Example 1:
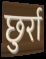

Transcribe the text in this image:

छुर्रा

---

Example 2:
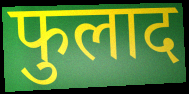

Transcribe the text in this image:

फुलाद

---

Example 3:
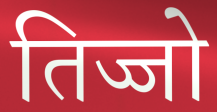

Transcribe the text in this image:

तिज्जो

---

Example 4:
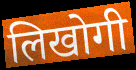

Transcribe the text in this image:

लिखोगी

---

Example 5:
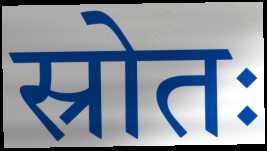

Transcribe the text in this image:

स्रोतः